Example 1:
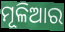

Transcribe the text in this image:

ମୂଳିଆର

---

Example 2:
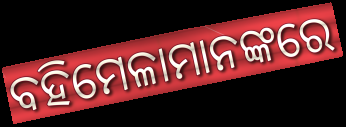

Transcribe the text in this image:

ବହିମେଳାମାନଙ୍କରେ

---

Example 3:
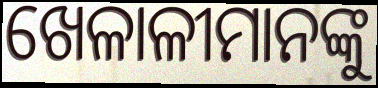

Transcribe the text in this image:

ଖେଳାଳୀମାନଙ୍କୁ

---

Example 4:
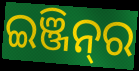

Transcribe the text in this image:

ଇଞ୍ଜିନ୍‍ର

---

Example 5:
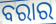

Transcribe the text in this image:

ବରାର